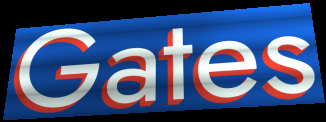
Gates